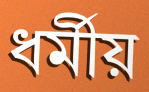
ধৰ্মীয়